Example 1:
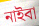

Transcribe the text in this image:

নাইবা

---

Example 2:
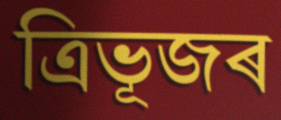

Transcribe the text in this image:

ত্ৰিভূজৰ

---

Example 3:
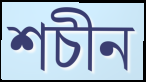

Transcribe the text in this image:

শচীন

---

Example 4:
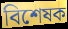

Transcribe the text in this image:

বিশেষক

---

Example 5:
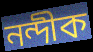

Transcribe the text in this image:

নন্দীক